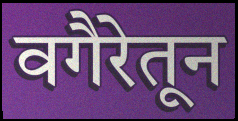
वगैरेतून